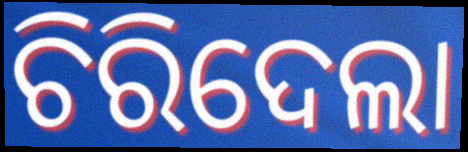
ଚିରିଦେଲା